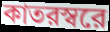
কাতরস্বরে